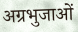
अग्रभुजाओं